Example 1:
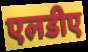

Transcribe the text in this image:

एलडीए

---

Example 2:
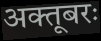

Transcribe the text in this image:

अक्तूबरः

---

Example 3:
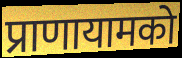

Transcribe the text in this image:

प्राणायामको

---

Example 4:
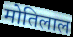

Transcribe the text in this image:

मोतिलाल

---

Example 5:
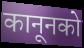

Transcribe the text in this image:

कानूनको